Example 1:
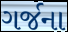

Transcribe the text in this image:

ગર્જના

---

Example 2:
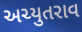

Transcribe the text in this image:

અચ્યુતરાવ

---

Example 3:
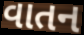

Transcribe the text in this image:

વાતન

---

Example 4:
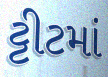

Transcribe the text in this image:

ટ્ટીટમાં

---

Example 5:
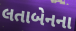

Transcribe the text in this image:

લતાબેનના